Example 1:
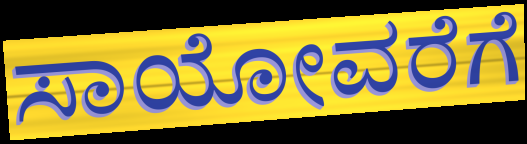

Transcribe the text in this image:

ಸಾಯೋವರೆಗೆ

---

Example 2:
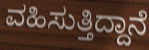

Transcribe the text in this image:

ವಹಿಸುತ್ತಿದ್ದಾನೆ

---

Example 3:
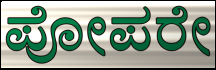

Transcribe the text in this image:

ಪೋಪರೇ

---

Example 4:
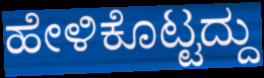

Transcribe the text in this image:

ಹೇಳಿಕೊಟ್ಟದ್ದು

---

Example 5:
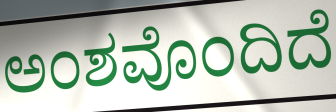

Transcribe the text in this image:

ಅಂಶವೊಂದಿದೆ